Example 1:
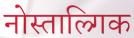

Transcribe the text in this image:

नोस्ताल्गिक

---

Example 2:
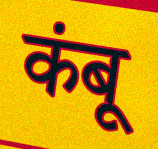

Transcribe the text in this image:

कंबू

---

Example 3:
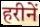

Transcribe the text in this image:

हरीनें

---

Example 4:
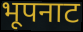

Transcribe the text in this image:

भूपनाट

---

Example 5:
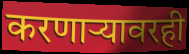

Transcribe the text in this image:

करणाऱ्यावरही